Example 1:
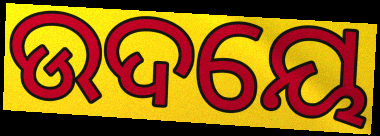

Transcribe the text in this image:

ଉଦୟେ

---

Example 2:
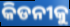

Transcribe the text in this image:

କିଡନୀକୁ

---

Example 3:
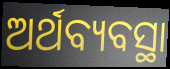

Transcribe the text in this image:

ଅର୍ଥବ୍ୟବସ୍ଥା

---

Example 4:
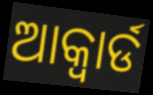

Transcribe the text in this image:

ଆକ୍ୱାର୍ଡ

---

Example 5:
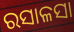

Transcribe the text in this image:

ରସାଳସା